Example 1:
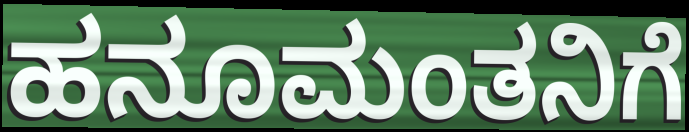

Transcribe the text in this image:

ಹನೂಮಂತನಿಗೆ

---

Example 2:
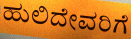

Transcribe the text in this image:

ಹುಲಿದೇವರಿಗೆ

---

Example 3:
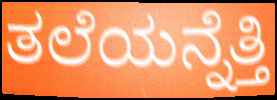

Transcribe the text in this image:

ತಲೆಯನ್ನೆತ್ತಿ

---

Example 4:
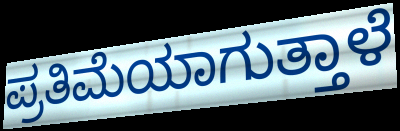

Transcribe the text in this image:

ಪ್ರತಿಮೆಯಾಗುತ್ತಾಳೆ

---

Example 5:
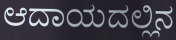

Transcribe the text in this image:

ಆದಾಯದಲ್ಲಿನ